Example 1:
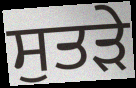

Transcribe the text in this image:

ਸੁਤੜੇ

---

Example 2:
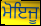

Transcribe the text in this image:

ਮੋਇਜੂ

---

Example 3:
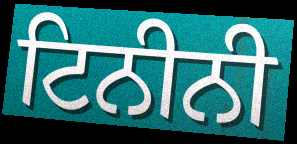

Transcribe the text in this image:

ਟਿਨੀਨੀ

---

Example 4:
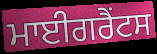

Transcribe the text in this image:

ਮਾਈਗਰੈਂਟਸ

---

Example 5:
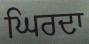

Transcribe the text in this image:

ਘਿਰਦਾ